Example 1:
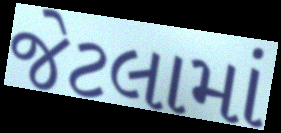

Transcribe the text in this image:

જેટલામાં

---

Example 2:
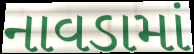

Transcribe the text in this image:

નાવડામાં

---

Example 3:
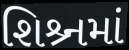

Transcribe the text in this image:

શિશ્ર્નમાં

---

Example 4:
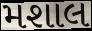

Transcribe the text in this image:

મશાલ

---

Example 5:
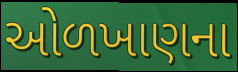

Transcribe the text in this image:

ઓળખાણના